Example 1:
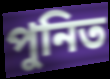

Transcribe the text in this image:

পুনিত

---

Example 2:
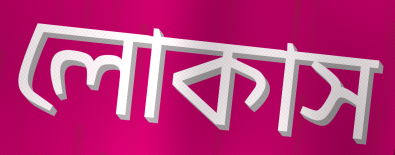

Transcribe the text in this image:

লোকাস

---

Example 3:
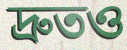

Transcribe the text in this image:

দ্রুতও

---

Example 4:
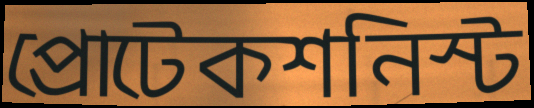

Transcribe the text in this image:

প্রোটেকশনিস্ট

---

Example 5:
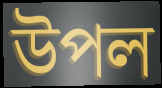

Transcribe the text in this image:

উপল